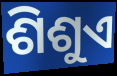
ଶିଶୁଏ